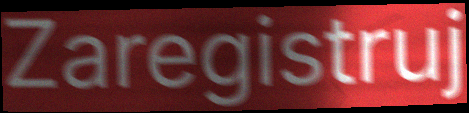
Zaregistruj